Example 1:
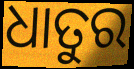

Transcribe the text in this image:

ଧାତୁର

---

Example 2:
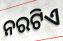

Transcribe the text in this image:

ନରଟିଏ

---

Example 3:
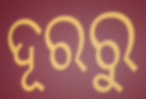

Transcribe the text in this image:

ଦୂରରୁ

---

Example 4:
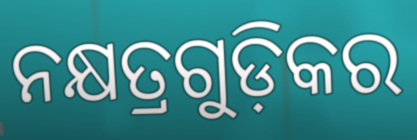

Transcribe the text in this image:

ନକ୍ଷତ୍ରଗୁଡ଼ିକର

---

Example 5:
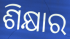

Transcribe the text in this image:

ଶିକ୍ଷାର